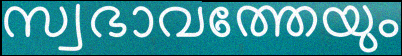
സ്വഭാവത്തേയും